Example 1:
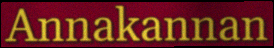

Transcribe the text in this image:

Annakannan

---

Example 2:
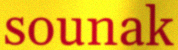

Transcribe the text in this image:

sounak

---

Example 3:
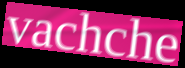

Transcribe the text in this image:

vachche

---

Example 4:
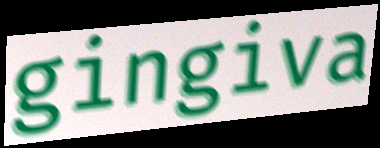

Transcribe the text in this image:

gingiva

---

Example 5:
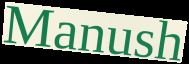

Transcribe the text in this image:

Manush